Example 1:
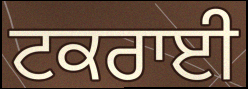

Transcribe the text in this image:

ਟਕਰਾਈ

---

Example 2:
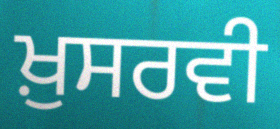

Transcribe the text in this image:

ਖ਼ੁਸਰਵੀ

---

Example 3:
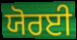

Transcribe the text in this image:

ਯੋਰਈ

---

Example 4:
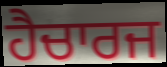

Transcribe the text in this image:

ਹੈਚਾਰਜ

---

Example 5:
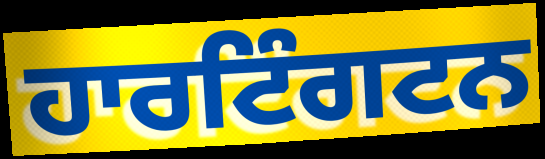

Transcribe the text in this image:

ਹਾਰਟਿੰਗਟਨ